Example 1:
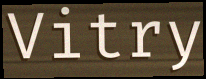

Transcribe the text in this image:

Vitry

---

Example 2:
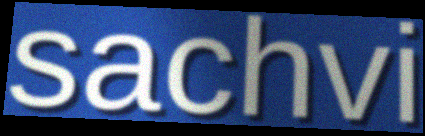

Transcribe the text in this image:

sachvi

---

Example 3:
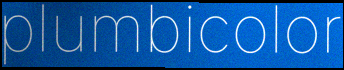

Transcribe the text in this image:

plumbicolor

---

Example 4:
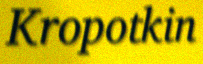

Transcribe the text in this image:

Kropotkin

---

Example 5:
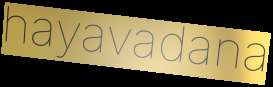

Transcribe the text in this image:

hayavadana